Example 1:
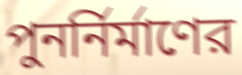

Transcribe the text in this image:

পুনর্নির্মাণের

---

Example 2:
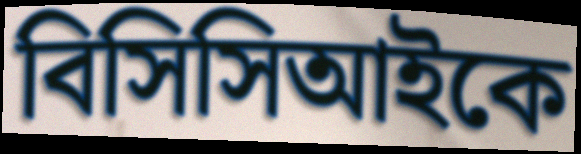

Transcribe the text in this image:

বিসিসিআইকে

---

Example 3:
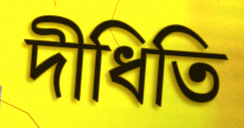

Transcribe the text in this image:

দীধিতি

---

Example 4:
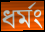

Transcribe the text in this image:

ধর্মং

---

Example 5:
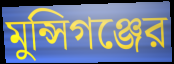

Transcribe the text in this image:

মুন্সিগঞ্জের